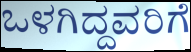
ಒಳಗಿದ್ದವರಿಗೆ